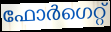
ഫോർഗെറ്റ്